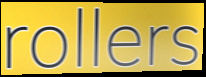
rollers